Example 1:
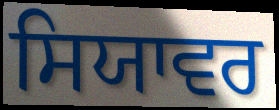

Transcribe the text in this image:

ਸਿਯਾਵਰ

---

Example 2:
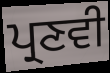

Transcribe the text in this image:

ਪ੍ਰਣਵੀ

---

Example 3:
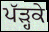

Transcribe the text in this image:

ਪੱੜ੍ਹਕੇ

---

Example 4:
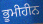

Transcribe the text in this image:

ਭੂਮੀਹੀਨ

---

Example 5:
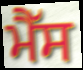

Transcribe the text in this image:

ਮੈੱਸ